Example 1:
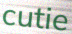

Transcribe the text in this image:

cutie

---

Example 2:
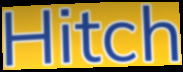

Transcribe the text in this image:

Hitch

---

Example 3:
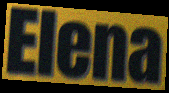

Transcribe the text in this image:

Elena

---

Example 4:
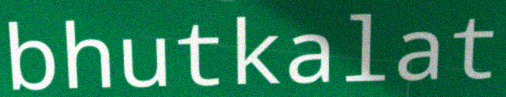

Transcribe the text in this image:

bhutkalat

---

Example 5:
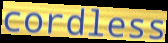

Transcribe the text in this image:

cordless